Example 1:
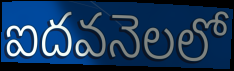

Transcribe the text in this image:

ఐదవనెలలో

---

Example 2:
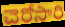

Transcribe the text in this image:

చెరోసారి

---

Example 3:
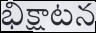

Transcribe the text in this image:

భిక్షాటన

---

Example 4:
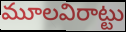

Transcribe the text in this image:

మూలవిరాట్టు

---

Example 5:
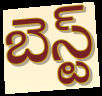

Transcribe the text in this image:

బెస్ట్